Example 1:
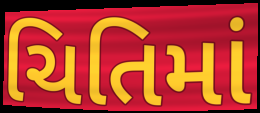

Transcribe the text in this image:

ચિતિમાં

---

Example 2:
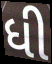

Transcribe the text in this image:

ધી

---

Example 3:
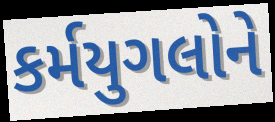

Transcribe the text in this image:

કર્મયુગલોને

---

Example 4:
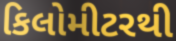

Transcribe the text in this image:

કિલોમીટરથી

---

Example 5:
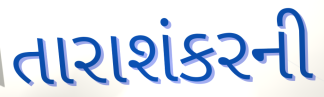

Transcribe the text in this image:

તારાશંકરની